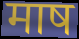
माष